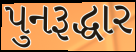
પુનરૂદ્ધાર